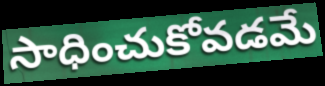
సాధించుకోవడమే